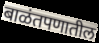
बाळंतपणातील